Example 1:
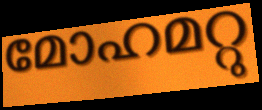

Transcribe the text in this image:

മോഹമറ്റു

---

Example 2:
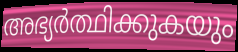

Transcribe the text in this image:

അഭ്യർത്ഥിക്കുകയും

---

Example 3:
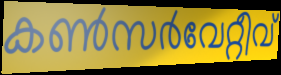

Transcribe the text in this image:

കൺസർവേറ്റീവ്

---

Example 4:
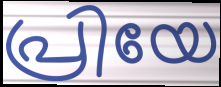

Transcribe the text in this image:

പ്രിയേ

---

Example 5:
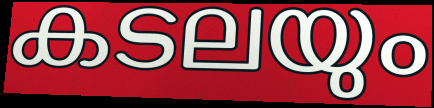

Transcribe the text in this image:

കടലയും